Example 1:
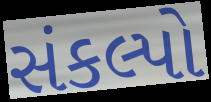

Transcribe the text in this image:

સંકલ્પો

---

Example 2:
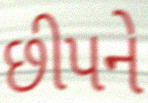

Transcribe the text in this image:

છીપને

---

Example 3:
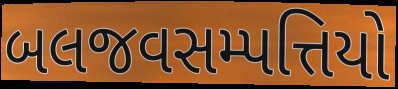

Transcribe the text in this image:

બલજવસમ્પત્તિયો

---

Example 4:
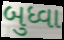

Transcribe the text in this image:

બુધ્વા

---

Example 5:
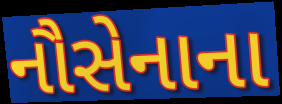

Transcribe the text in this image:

નૌસેનાના